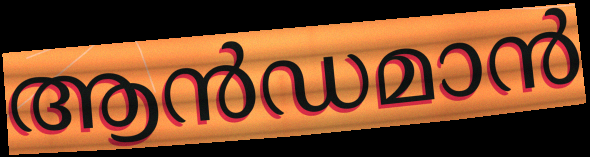
ആൻഡമാൻ